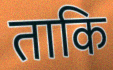
ताकि